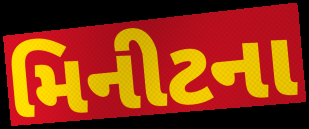
મિનીટના